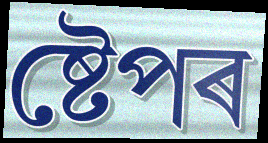
ষ্টেপৰ